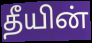
தீயின்